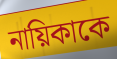
নায়িকাকে